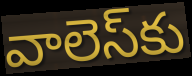
వాలెస్‌కు